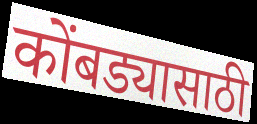
कोंबड्यासाठी